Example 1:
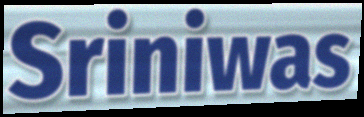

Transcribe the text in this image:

Sriniwas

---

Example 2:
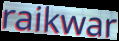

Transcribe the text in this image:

raikwar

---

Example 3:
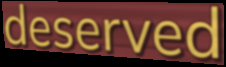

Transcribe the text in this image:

deserved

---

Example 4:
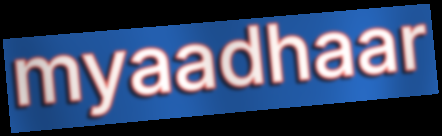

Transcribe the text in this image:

myaadhaar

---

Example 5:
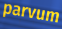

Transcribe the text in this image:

parvum